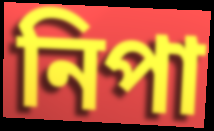
নিপা